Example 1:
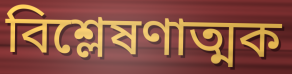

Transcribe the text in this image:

বিশ্লেষণাত্মক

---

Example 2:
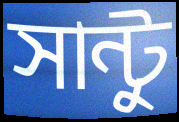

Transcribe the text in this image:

সান্টু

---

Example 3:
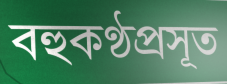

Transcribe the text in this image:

বহুকণ্ঠপ্রসূত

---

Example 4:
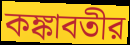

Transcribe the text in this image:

কঙ্কাবতীর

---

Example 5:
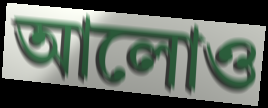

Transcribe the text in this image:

আলোও